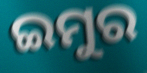
ଇମୁର